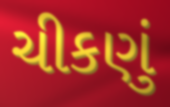
ચીકણું